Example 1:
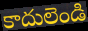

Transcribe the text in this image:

కాదులెండి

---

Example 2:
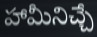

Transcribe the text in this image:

హామీనిచ్చే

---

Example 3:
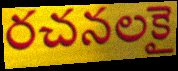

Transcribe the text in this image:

రచనలకై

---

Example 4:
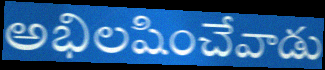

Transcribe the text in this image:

అభిలషించేవాడు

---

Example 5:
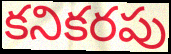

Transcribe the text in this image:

కనికరపు